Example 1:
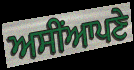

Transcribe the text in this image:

ਅਸੀਂਆਪਣੇ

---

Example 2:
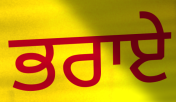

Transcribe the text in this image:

ਭਰਾਏ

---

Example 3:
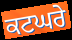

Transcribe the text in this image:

ਕਟਘਰੇ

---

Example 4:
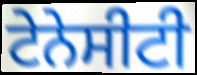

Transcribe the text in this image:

ਟੇਨੇਸੀਟੀ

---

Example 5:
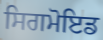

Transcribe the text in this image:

ਸਿਗਮੋਇਡ